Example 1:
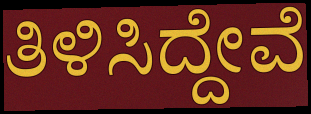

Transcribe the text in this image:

ತಿಳಿಸಿದ್ದೇವೆ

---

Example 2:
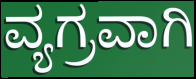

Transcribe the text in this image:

ವ್ಯಗ್ರವಾಗಿ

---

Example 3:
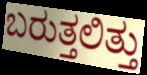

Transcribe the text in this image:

ಬರುತ್ತಲಿತ್ತು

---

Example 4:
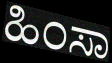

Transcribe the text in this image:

ಹಿಂಸಾ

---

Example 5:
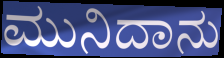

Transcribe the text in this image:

ಮುನಿದಾನು